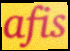
afis